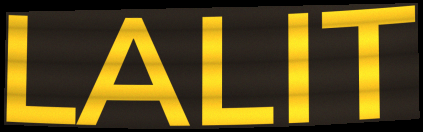
LALIT